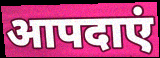
आपदाएं